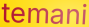
temani